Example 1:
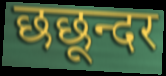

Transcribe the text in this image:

छछून्दर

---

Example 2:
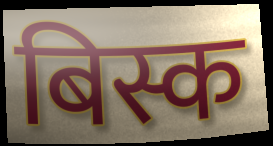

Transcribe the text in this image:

बिस्क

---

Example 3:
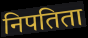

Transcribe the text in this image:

निपतिता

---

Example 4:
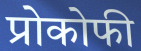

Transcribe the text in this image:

प्रोकोफी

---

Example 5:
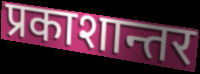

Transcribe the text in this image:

प्रकाशान्तर